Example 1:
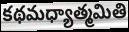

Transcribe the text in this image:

కథమధ్యాత్మమితి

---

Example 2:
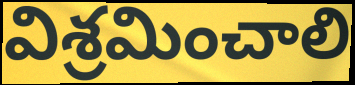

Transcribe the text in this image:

విశ్రమించాలి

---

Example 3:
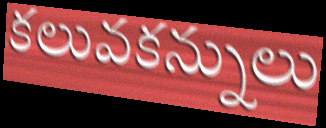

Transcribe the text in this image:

కలువకన్నులు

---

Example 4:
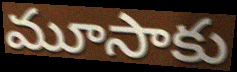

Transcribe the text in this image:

మూసాకు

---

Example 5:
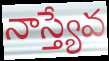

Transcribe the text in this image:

నాస్త్యేవ